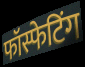
फॉस्फेटिंग